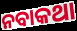
ନବାକଥା